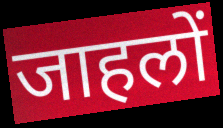
जाहलों